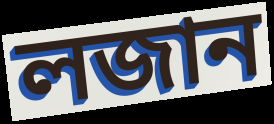
লজান